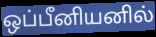
ஒப்பீனியனில்